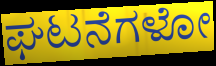
ಘಟನೆಗಳೋ